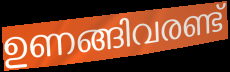
ഉണങ്ങിവരണ്ട്